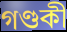
গণ্ডকী